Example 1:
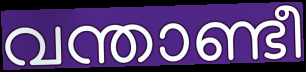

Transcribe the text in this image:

വന്താണ്ടീ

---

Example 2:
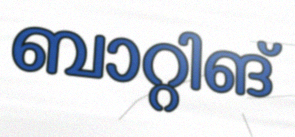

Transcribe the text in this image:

ബാറ്റിങ്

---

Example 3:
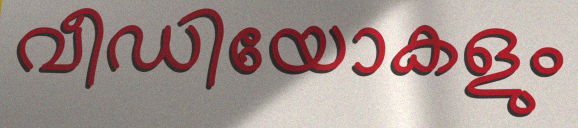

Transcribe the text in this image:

വീഡിയോകളും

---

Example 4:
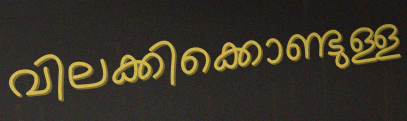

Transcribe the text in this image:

വിലക്കിക്കൊണ്ടുള്ള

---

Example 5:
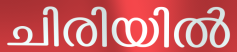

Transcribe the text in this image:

ചിരിയിൽ